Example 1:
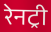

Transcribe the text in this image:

रेनट्री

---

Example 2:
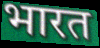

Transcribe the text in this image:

भारत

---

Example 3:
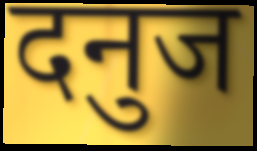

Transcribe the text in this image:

दनुज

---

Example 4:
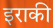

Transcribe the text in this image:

इराकी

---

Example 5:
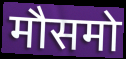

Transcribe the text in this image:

मौसमो